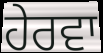
ਹੇਰਵਾ